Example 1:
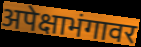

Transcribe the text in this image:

अपेक्षाभंगावर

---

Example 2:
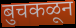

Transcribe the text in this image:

बुचकळून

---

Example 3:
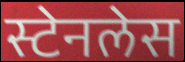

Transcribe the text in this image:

स्टेनलेस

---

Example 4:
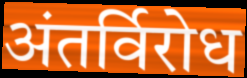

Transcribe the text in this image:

अंतर्विरोध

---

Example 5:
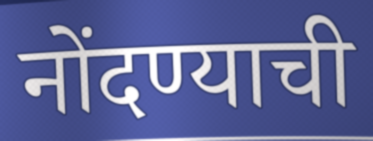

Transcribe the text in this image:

नोंदण्याची